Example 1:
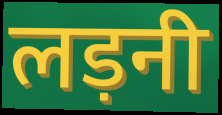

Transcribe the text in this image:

लड़नी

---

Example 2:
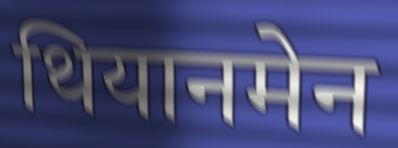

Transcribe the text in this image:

थियानमेन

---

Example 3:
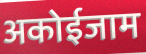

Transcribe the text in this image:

अकोईजाम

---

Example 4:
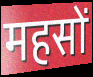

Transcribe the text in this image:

महसों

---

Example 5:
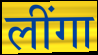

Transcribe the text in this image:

लींगा